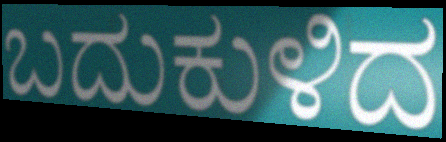
ಬದುಕುಳಿದ